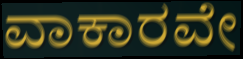
ವಾಕಾರವೇ